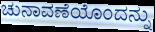
ಚುನಾವಣೆಯೊಂದನ್ನು